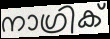
നാഗ്രിക്